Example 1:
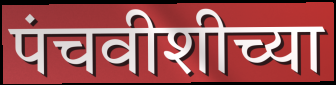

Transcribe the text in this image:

पंचवीशीच्या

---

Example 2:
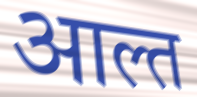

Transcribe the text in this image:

आल्त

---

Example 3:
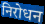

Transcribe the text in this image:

निरोधन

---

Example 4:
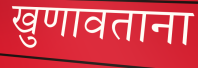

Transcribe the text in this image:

खुणावताना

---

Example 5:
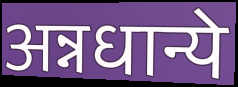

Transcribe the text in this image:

अन्नधान्ये